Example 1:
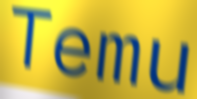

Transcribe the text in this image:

Temu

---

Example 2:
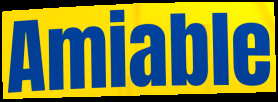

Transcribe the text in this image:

Amiable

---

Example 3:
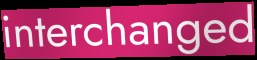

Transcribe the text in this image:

interchanged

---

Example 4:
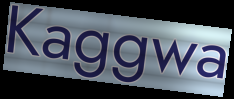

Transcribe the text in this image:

Kaggwa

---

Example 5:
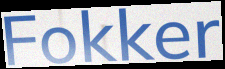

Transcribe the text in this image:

Fokker